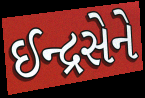
ઈન્દ્રસેને